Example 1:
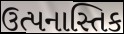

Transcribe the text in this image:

ઉત્પનાસ્તિક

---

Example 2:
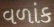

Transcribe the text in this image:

વળાંક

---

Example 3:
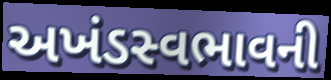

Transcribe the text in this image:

અખંડસ્વભાવની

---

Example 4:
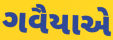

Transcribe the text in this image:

ગવૈયાએ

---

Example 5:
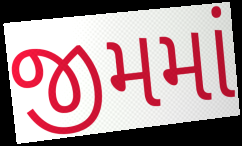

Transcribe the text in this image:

જીમમાં